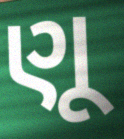
ણૂ